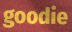
goodie